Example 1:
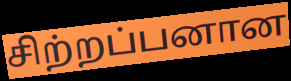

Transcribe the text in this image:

சிற்றப்பனான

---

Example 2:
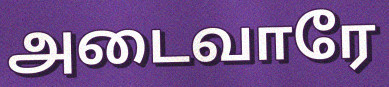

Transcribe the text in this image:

அடைவாரே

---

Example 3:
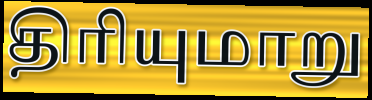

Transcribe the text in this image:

திரியுமாறு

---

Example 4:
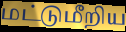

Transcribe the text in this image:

மட்டுமீறிய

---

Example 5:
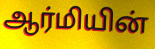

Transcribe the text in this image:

ஆர்மியின்